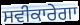
ਸਵੀਕਾਰੇਗਾ